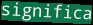
significa